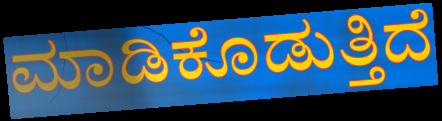
ಮಾಡಿಕೊಡುತ್ತಿದೆ